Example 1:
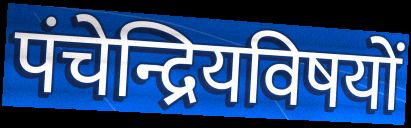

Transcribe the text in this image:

पंचेन्द्रियविषयों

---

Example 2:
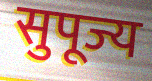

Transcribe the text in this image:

सुपूज्य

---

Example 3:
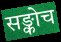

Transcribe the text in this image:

सङ्कोच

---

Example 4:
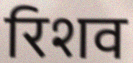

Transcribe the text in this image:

रिशव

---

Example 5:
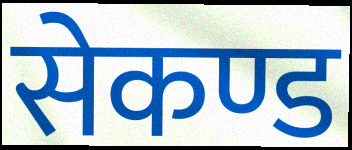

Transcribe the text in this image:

सेकण्ड